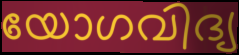
യോഗവിദ്യ